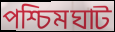
পশ্চিমঘাট